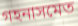
গহনাসমেত